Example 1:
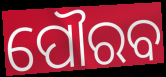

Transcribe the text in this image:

ପୌରବ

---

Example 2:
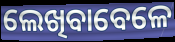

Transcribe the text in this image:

ଲେଖିବାବେଳେ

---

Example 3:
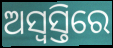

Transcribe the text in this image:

ଅସ୍ୱସ୍ତିରେ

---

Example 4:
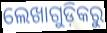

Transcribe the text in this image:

ଲେଖାଗୁଡ଼ିକରୁ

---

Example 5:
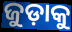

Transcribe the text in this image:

ଜୁଡ଼ାକୁ